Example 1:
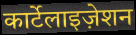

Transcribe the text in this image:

कार्टेलाइज़ेशन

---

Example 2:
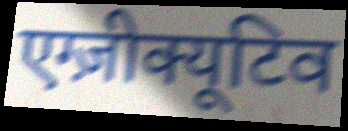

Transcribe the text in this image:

एग्ज़ीक्यूटिव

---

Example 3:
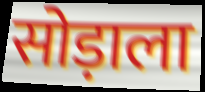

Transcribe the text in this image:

सोड़ाला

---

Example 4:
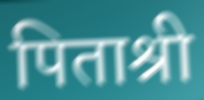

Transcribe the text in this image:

पिताश्री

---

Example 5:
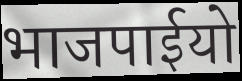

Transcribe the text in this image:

भाजपाईयो